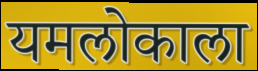
यमलोकाला